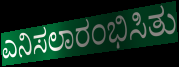
ಎನಿಸಲಾರಂಭಿಸಿತು